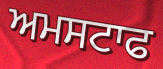
ਅਮਸਟਾਫ